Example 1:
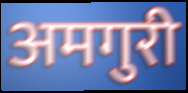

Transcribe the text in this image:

अमगुरी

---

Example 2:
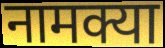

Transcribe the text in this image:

नामक्या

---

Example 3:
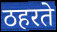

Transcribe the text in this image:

ठहरते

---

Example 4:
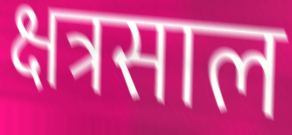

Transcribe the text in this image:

क्षत्रसाल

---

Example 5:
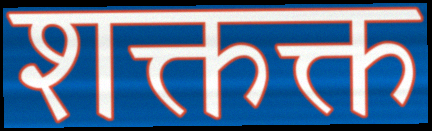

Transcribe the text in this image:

शक्तक्त